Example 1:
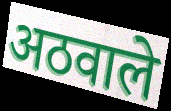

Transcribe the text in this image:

अठवाले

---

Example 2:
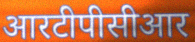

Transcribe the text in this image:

आरटीपीसीआर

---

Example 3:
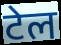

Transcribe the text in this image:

टेल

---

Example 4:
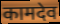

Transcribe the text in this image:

कामदेव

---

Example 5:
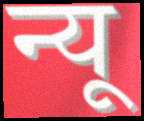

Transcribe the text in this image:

न्यू